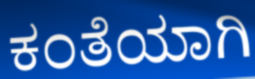
ಕಂತೆಯಾಗಿ